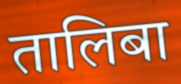
तालिबा